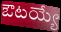
ఔటయ్యే